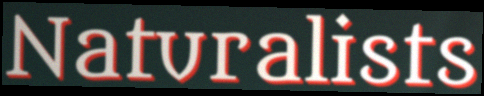
Naturalists